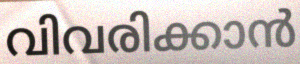
വിവരിക്കാൻ